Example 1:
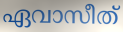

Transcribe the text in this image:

ഏവാസീത്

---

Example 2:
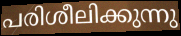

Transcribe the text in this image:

പരിശീലിക്കുന്നു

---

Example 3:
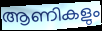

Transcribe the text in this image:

ആണികളും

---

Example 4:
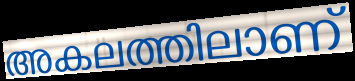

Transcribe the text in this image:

അകലത്തിലാണ്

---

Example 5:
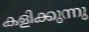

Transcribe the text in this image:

കളിക്കുന്നു